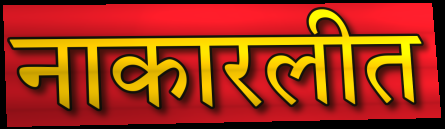
नाकारलीत